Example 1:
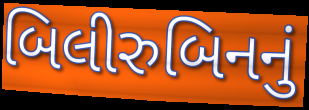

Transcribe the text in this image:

બિલીરુબિનનું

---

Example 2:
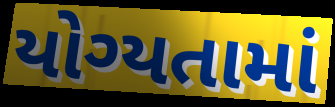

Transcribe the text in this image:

યોગ્યતામાં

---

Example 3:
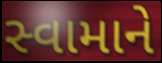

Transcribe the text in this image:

સ્વામાને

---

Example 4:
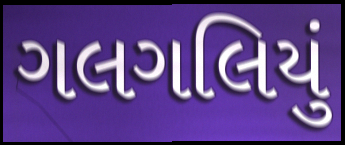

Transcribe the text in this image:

ગલગલિયું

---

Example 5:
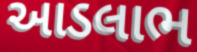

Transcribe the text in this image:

આડલાભ